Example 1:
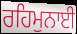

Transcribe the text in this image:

ਰਹਿਮੁਨਾਈ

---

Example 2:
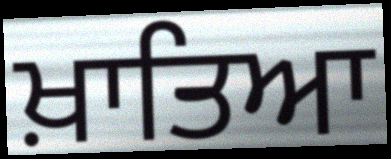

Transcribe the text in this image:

ਖ਼ਾਤਿਆ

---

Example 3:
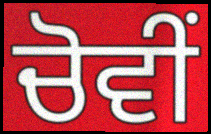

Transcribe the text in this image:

ਚੋਵੀਂ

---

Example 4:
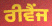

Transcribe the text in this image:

ਰੀਵੈਂਜ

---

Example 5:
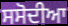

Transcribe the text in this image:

ਸਸੋਦੀਆ